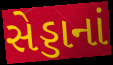
સેડ્ડાનાં